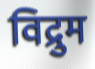
विद्रुम